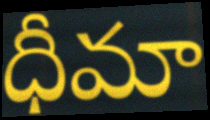
ధీమా